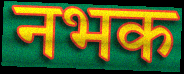
नभक